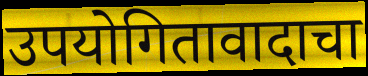
उपयोगितावादाचा